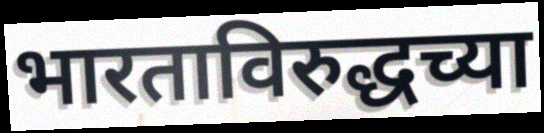
भारताविरुद्धच्या